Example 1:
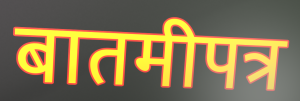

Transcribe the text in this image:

बातमीपत्र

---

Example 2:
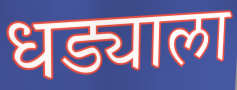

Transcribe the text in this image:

धड्याला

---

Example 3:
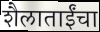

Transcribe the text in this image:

शैलाताईंचा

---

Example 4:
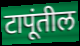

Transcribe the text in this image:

टापूंतील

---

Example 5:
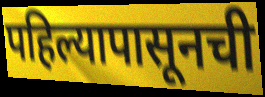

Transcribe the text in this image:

पहिल्यापासूनची